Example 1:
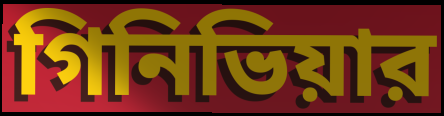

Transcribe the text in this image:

গিনিভিয়ার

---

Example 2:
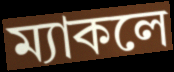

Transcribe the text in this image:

ম্যাকলে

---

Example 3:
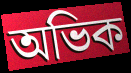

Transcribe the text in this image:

অভিক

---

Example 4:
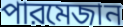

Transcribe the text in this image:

পারমেজান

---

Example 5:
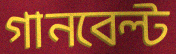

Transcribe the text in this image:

গানবেল্ট